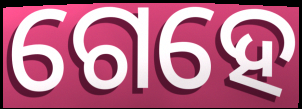
ଗେହେ